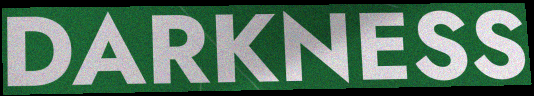
DARKNESS